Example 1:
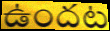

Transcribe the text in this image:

ఉందట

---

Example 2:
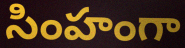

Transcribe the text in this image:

సింహంగా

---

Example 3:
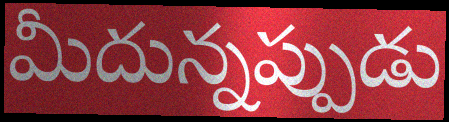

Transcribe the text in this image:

మీదున్నప్పుడు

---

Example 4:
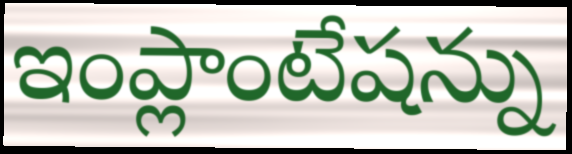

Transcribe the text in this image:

ఇంప్లాంటేషన్ను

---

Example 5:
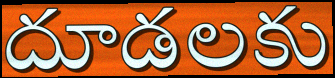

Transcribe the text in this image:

దూడలకు